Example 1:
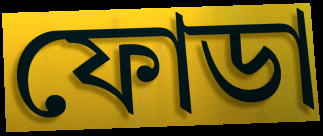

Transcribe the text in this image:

ফোডা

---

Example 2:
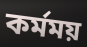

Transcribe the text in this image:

কর্মময়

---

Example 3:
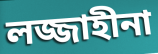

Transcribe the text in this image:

লজ্জাহীনা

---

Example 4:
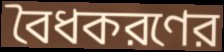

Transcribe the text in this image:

বৈধকরণের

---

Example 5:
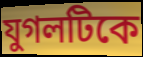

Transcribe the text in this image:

যুগলটিকে